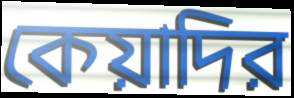
কেয়াদির